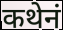
कथेनं